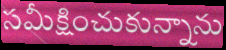
సమీక్షించుకున్నాను